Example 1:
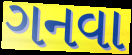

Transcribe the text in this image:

ગનવા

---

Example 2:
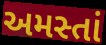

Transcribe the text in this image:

અમસ્તાં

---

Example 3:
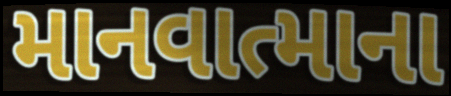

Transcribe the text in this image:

માનવાત્માના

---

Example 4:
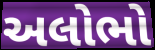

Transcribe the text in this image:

અલોભો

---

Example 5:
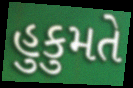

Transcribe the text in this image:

હુકુમતે